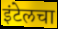
इंटेलचा